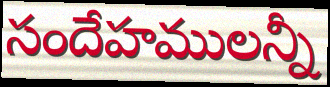
సందేహములన్నీ